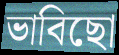
ভাবিছো